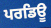
ਪਰਡਿਊ